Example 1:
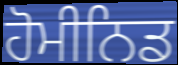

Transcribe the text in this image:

ਹੋਮੀਨਿਡ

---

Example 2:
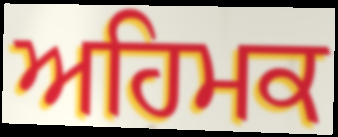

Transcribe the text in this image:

ਅਹਿਮਕ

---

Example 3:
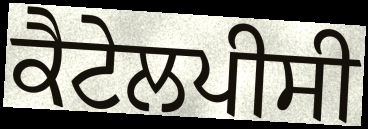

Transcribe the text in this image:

ਕੈਟੇਲਪੀਸੀ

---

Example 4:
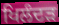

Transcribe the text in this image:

ਖਿਲੰਦੜ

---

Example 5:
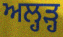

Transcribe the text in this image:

ਅਲ੍ਹੜ੍ਹ